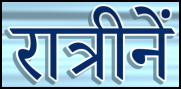
रात्रीनें